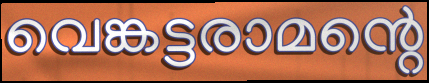
വെങ്കട്ടരാമന്റെ